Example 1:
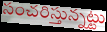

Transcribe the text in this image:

సంచరిస్తున్నట్టు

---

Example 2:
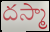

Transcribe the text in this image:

దస్మా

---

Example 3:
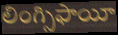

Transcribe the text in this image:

లింగ్సిఫాయీ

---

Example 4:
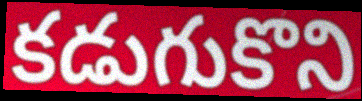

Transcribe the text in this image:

కడుగుకొని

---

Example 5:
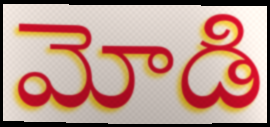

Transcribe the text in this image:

మోడి